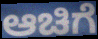
ಆಚಿಗೆ